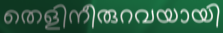
തെളിനീരുറവയായി